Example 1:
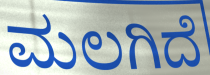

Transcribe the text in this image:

ಮಲಗಿದೆ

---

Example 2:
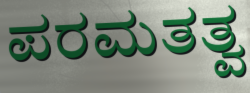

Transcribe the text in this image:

ಪರಮತತ್ವ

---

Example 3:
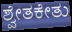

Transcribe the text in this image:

ಶ್ವೇತಕೇತು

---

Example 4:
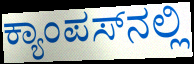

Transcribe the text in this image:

ಕ್ಯಾಂಪಸ್‌ನಲ್ಲಿ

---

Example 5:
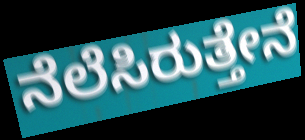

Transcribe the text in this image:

ನೆಲೆಸಿರುತ್ತೇನೆ